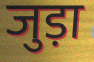
जुड़ा